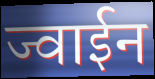
ज्वाईन